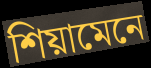
শিয়ামেনে